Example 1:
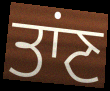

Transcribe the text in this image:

ਤਾਂਣ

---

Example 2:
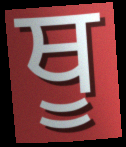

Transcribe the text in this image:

ਥੂ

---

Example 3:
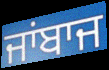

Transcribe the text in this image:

ਜਾਂਬਾਜ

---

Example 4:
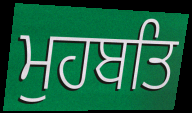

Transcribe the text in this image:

ਮੁਹਬਤਿ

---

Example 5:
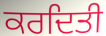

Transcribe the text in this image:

ਕਰਦਿਤੀ